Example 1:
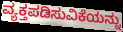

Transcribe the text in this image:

ವ್ಯಕ್ತಪಡಿಸುವಿಕೆಯನ್ನು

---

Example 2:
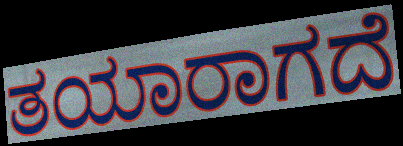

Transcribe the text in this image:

ತಯಾರಾಗದೆ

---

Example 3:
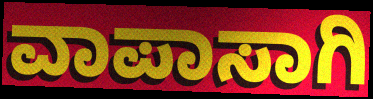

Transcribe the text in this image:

ವಾಪಾಸಾಗಿ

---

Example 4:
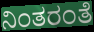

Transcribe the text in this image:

ನಿಂತರಂತೆ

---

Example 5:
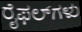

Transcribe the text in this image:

ರೈಫಲ್‌ಗಳು